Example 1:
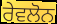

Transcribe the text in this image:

ਰੇਵਲੋਨ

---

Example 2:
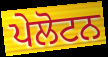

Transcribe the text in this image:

ਪੇਲੋਟਨ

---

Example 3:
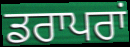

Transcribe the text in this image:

ਡਰਾਪਰਾਂ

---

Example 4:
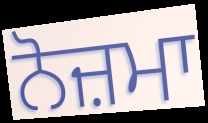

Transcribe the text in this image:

ਨੋਜ਼ਮਾ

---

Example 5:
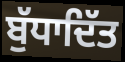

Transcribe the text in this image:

ਬੁੱਧਾਦਿੱਤ